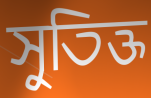
সুতিক্ত